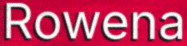
Rowena